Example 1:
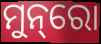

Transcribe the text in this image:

ମୁନ୍‌ରୋ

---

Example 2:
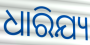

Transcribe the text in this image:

ଧାରିଯ୍ୟ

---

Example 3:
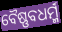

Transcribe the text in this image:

ବୈଷ୍ଣବଧର୍ମ୍ମ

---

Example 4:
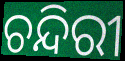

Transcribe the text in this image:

ଚନ୍ଦିରୀ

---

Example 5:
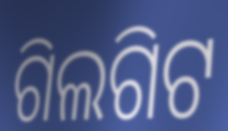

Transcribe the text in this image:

ଗିଲଗିଟ